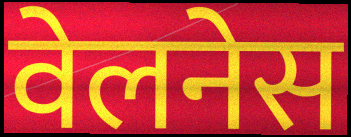
वेलनेस